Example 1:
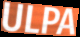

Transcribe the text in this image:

ULPA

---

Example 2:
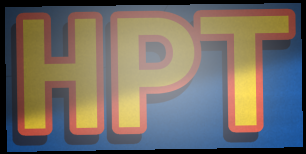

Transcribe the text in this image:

HPT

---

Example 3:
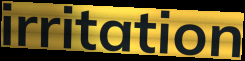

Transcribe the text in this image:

irritation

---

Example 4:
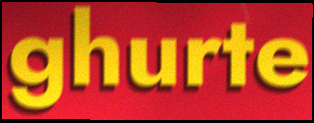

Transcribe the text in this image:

ghurte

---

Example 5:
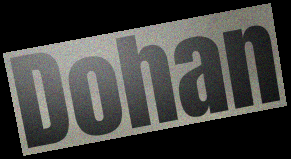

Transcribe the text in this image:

Dohan